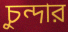
চুন্দার